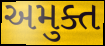
અમુક્ત